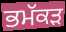
ਭਮੱਕੜ